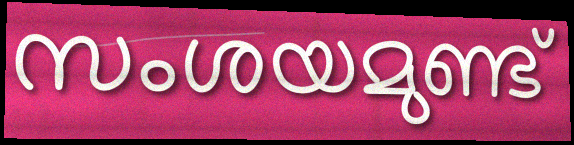
സംശയമുണ്ട്